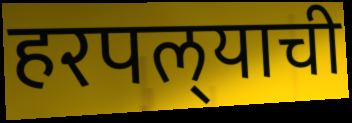
हरपल्याची